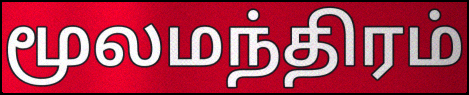
மூலமந்திரம்